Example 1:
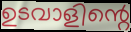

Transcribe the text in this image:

ഉടവാളിന്റെ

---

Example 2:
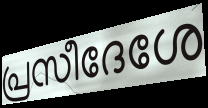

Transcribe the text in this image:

പ്രസീദേശേ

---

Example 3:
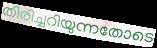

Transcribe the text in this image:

തിരിച്ചറിയുന്നതോടെ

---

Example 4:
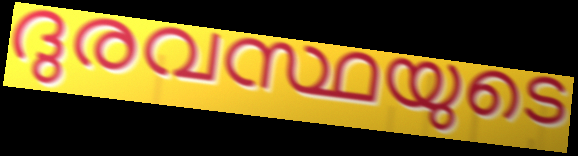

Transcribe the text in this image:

ദുരവസ്ഥയുടെ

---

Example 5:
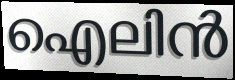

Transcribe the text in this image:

ഐലിൻ